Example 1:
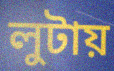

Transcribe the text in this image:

লুটায়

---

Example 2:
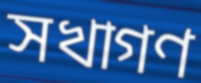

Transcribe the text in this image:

সখাগণ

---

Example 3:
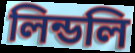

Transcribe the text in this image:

লিন্ডলি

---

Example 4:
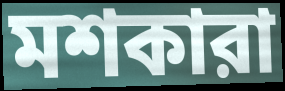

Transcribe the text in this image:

মশকারা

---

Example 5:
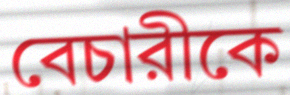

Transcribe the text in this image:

বেচারীকে